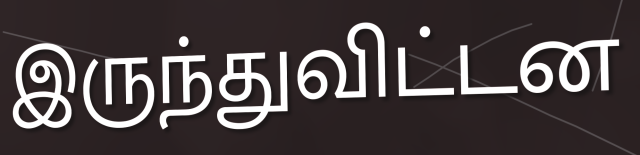
இருந்துவிட்டன